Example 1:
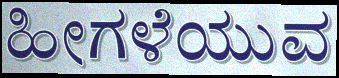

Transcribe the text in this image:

ಹೀಗಳೆಯುವ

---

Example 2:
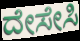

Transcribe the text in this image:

ದೇಸೇಸಿ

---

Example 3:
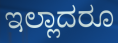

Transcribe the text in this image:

ಇಲ್ಲಾದರೂ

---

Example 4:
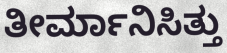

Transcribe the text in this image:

ತೀರ್ಮಾನಿಸಿತ್ತು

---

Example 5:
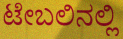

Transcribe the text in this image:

ಟೇಬಲಿನಲ್ಲಿ